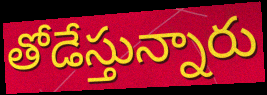
తోడేస్తున్నారు